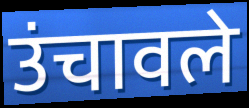
उंचावले